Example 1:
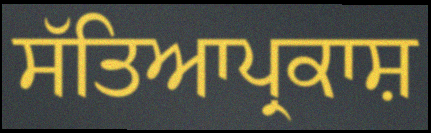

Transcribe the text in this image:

ਸੱਤਿਆਪ੍ਰਕਾਸ਼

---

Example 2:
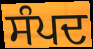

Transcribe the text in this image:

ਸੰਪਦ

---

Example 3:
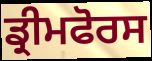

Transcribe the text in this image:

ਡ੍ਰੀਮਫੋਰਸ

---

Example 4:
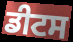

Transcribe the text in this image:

ਡੀਟਸ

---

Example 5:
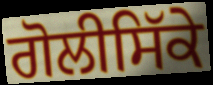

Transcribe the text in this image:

ਗੋਲੀਸਿੱਕੇ